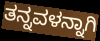
ತನ್ನವಳನ್ನಾಗಿ